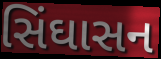
સિંઘાસન